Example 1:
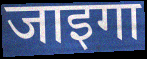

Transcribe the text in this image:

जाइगा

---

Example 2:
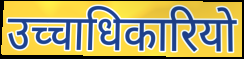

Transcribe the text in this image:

उच्चाधिकारियो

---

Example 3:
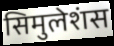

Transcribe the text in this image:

सिमुलेशंस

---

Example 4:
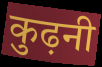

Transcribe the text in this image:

कुढ़नी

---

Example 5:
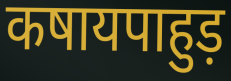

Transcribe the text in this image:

कषायपाहुड़